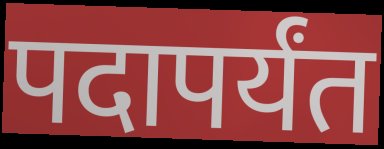
पदापर्यंत